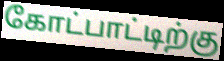
கோட்பாட்டிற்கு